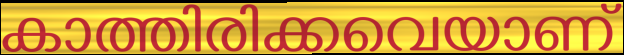
കാത്തിരിക്കവെയാണ്